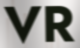
VR